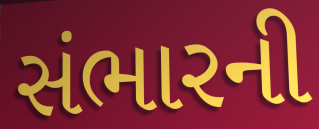
સંભારની